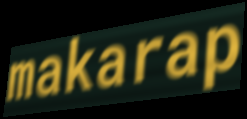
makarap